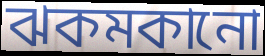
ঝকমকানো